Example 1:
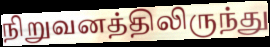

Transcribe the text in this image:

நிறுவனத்திலிருந்து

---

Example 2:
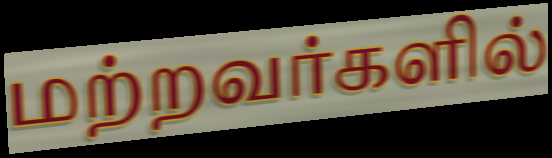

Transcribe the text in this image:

மற்றவர்களில்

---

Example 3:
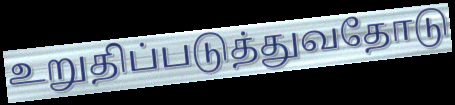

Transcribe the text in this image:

உறுதிப்படுத்துவதோடு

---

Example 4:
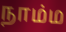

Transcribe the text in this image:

நாம்ம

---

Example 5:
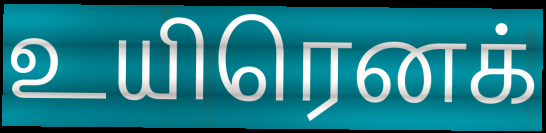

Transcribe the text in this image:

உயிரெனக்